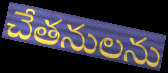
చేతనులను